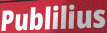
Publilius